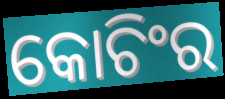
କୋଚିଂର